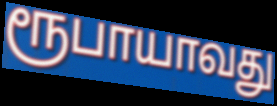
ரூபாயாவது